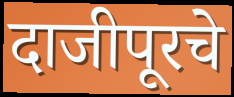
दाजीपूरचे